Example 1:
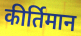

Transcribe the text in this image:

कीर्तिमान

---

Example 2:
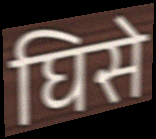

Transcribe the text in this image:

घिसे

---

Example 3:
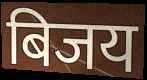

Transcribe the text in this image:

बिजय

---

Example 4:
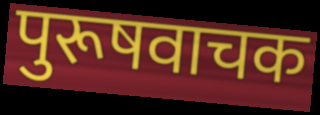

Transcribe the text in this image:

पुरूषवाचक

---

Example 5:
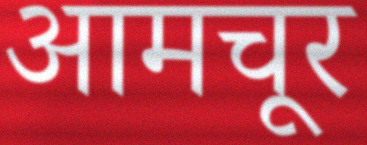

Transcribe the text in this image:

आमचूर